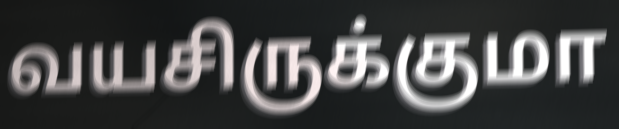
வயசிருக்குமா